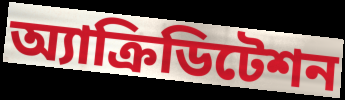
অ্যাক্রিডিটেশন